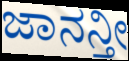
ಜಾನನ್ತೀ